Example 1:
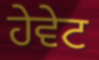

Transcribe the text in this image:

ਹੇਵੇਟ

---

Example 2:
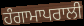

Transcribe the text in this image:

ਹੰਗਾਮਾਪਰਾਲੀ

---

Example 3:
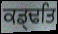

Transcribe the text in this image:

ਕਡ੍ਢਤਿ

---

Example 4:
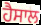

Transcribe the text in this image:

ਹੈਸਾਲ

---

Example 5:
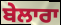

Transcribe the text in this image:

ਬੇਲਾਰਾ